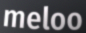
meloo